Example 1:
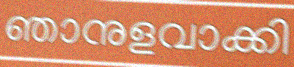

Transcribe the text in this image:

ഞാനുളവാക്കി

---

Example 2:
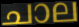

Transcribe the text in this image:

ചാല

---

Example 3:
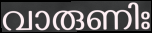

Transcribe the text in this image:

വാരുണിഃ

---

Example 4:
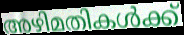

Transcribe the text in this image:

അഴിമതികൾക്ക്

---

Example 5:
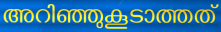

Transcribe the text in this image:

അറിഞ്ഞുകൂടാത്തത്